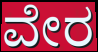
ವೇರ